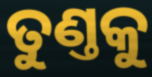
ତୁଣ୍ତକୁ